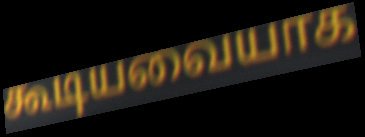
கூடியவையாக